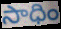
సాధిం